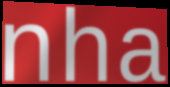
nha